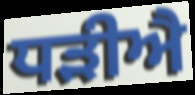
ਧੜੀਐ